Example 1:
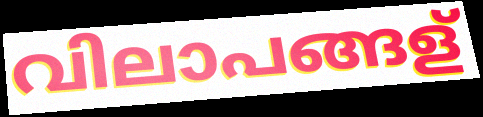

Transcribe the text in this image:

വിലാപങ്ങള്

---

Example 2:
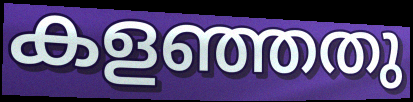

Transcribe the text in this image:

കളഞ്ഞതു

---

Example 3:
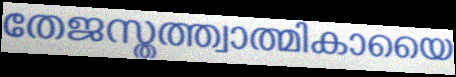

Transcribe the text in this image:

തേജസ്തത്ത്വാത്മികായൈ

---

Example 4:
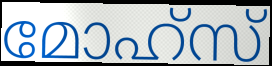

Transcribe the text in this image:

മോഹ്സ്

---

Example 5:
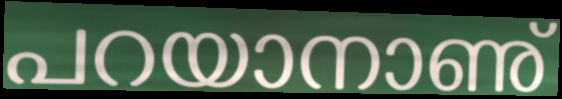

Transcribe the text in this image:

പറയാനാണു്